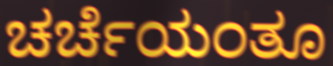
ಚರ್ಚೆಯಂತೂ